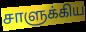
சாளுக்கிய